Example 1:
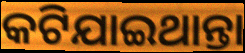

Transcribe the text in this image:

କଟିଯାଇଥାନ୍ତା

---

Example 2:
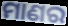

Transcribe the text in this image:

ମାଣର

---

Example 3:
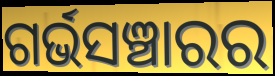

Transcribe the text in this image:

ଗର୍ଭସଞ୍ଚାରର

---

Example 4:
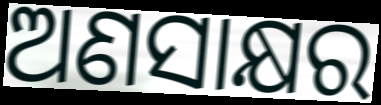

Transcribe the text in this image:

ଅଣସାକ୍ଷର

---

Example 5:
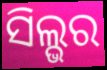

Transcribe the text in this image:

ସିଲ୍ଭର